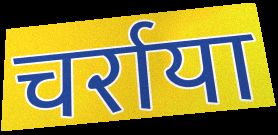
चर्राया